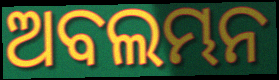
ଅବଲମ୍ଭନ